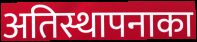
अतिस्थापनाका